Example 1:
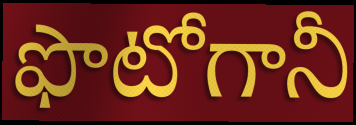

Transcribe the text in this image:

ఫొటోగానీ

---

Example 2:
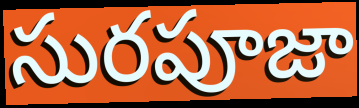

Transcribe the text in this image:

సురపూజా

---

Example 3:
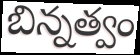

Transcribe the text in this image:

బిన్నత్వం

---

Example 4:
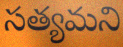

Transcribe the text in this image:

సత్యమని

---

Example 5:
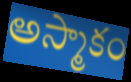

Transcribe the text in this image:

అస్మాకం